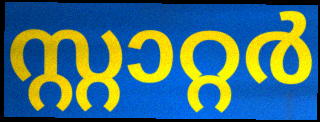
സ്റ്റാറ്റർ